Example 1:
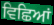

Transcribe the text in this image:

ਵਿਛਿਆਂ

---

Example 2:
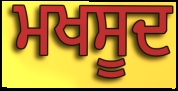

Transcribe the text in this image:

ਮਖਸੂਦ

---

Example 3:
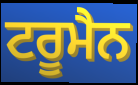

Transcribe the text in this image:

ਟਰੂਮੈਨ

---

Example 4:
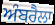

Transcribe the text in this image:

ਅੰਬਰੈਲਾ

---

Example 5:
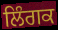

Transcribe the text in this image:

ਲਿੰਗਕ